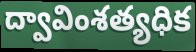
ద్వావింశత్యధిక